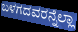
ಬಳಗದವರನ್ನೆಲ್ಲಾ